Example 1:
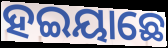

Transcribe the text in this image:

ହଇୟାଛେ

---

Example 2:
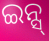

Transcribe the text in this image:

ଇନ୍ସ୍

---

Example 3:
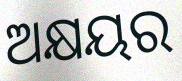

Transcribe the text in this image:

ଅକ୍ଷୟର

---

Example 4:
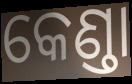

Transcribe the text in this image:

କେଣ୍ଡା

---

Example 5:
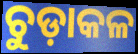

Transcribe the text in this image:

ଚୁଡ଼ାକଳ